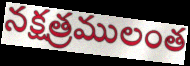
నక్షత్రములంత